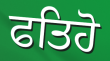
ਫਤਿਹੋ